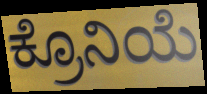
ಕ್ರೊನಿಯೆ